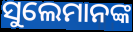
ସୁଲେମାନଙ୍କ